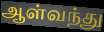
ஆள்வந்து